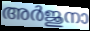
അർജുനാ